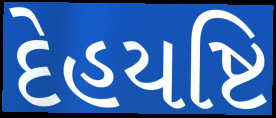
દેહયષ્ટિ